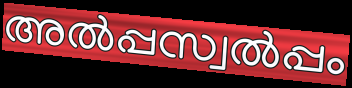
അൽപ്പസ്വൽപ്പം